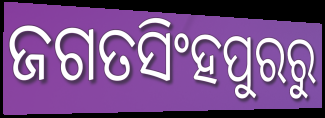
ଜଗତସିଂହପୁରରୁ